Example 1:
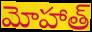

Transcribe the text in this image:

మోహాత్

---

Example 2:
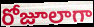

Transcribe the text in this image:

రోజూలాగా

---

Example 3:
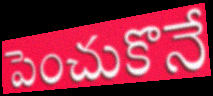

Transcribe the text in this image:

పెంచుకొనే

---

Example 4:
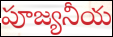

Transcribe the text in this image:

పూజ్యనీయ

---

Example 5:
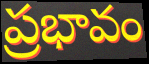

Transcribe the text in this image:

ప్రభావం